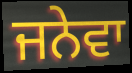
ਜਨੇਵਾ